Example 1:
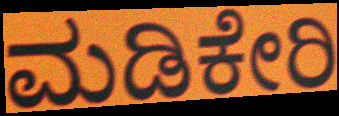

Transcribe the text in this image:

ಮಡಿಕೇರಿ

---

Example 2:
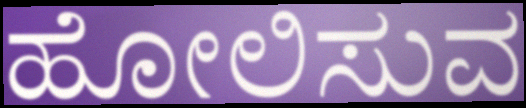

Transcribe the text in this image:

ಹೋಲಿಸುವ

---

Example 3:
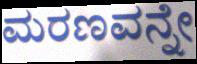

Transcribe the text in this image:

ಮರಣವನ್ನೇ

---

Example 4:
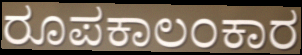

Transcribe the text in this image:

ರೂಪಕಾಲಂಕಾರ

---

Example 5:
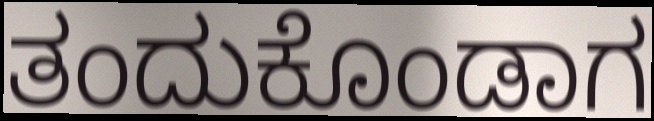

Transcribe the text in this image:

ತಂದುಕೊಂಡಾಗ